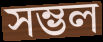
সম্ভল